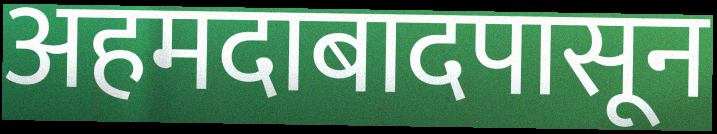
अहमदाबादपासून